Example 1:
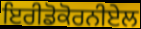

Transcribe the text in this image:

ਇਰੀਡੋਕੋਰਨੀਏਲ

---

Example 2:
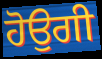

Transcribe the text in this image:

ਹੋਉਗੀ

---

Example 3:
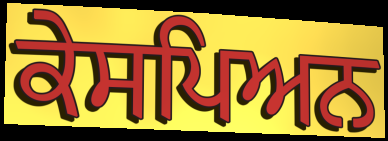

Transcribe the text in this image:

ਕੇਸਪਿਅਨ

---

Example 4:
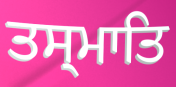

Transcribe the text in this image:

ਤਸ੍ਮਾਤਿ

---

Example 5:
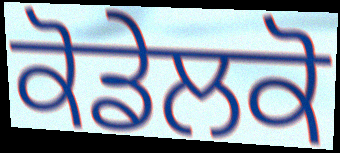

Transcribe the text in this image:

ਕੋਡੇਲਕੋ